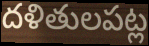
దళితులపట్ల